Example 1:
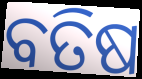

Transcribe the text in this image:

ବତିଷ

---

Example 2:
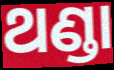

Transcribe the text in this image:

ଥଣ୍ଡା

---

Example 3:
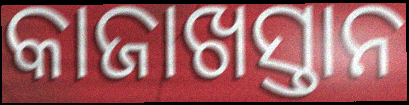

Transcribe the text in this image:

କାଜାଖସ୍ତାନ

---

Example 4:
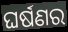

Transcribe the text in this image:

ଘର୍ଷଣର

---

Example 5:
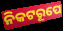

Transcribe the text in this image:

ନିକଟରୂପେ